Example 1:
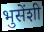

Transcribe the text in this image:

भुसेंशी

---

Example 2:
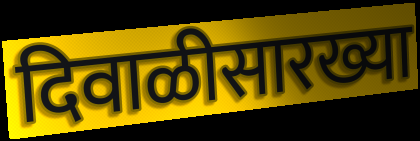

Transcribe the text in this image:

दिवाळीसारख्या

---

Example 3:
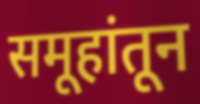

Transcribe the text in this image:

समूहांतून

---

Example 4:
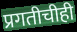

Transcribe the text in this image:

प्रगतीचीही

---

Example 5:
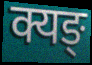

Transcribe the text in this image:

क्यङ्